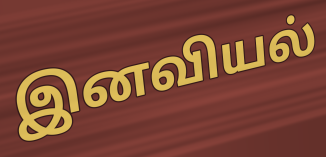
இனவியல்